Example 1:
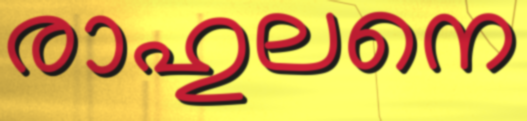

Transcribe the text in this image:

രാഹുലനെ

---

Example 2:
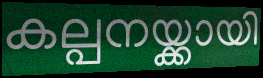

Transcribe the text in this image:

കല്പനയ്ക്കായി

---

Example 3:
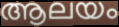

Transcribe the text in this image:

ആലയം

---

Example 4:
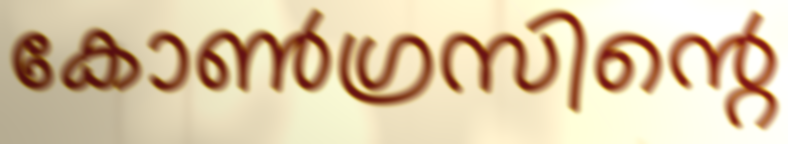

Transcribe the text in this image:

കോൺഗ്രസിന്റെ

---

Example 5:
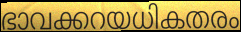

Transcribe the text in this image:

ഭാവക്കറയധികതരം